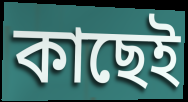
কাছেই